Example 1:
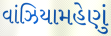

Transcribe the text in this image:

વાંઝિયામહેણું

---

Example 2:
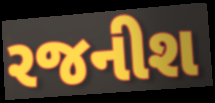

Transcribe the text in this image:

રજનીશ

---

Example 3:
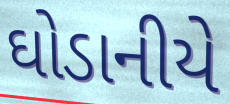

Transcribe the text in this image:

ઘોડાનીયે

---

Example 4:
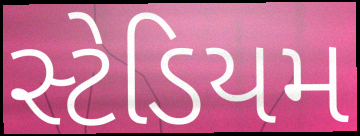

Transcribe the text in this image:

સ્ટેડિયમ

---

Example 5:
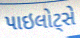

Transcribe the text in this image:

પાઇલોટ્સે